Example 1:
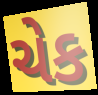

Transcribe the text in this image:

ચેક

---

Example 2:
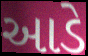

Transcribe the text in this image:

આડે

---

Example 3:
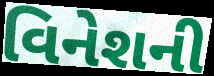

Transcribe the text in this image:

વિનેશની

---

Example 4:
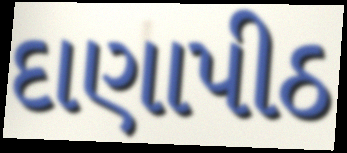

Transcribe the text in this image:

દાણાપીઠ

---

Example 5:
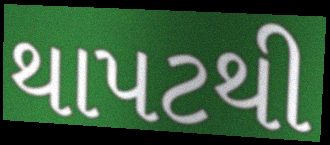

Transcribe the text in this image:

થાપટથી